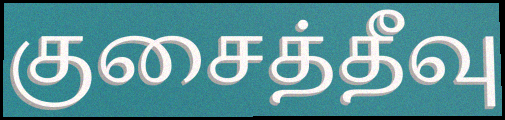
குசைத்தீவு